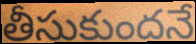
తీసుకుందనే